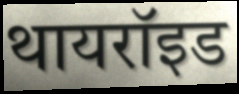
थायरॉइड